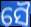
ସୈ